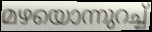
മഴയൊന്നുറച്ച്